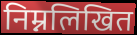
निम्नलिखित